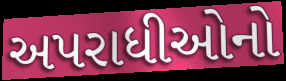
અપરાધીઓનો